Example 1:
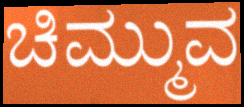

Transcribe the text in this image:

ಚಿಮ್ಮುವ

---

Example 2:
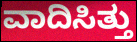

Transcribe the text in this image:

ವಾದಿಸಿತ್ತು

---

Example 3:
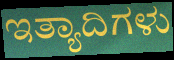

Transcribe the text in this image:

ಇತ್ಯಾದಿಗಳು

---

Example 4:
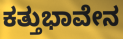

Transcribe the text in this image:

ಕತ್ತುಭಾವೇನ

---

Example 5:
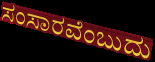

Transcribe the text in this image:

ಸಂಸಾರವೆಂಬುದು